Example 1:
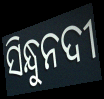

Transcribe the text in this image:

ସିନ୍ଧୁନଦୀ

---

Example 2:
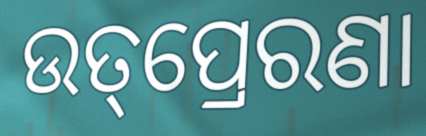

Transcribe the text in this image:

ଉତ୍‌ପ୍ରେରଣା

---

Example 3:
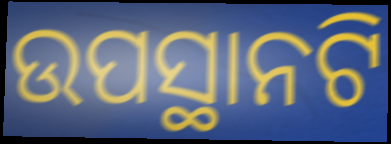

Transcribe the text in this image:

ଉପସ୍ଥାନଟି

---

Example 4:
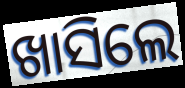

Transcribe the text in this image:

ଖାସିଲେ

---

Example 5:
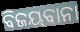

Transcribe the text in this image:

ବିଜୟବାନା